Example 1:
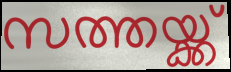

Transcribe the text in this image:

സത്തയ്ക്ക്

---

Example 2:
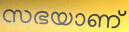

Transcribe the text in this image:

സഭയാണ്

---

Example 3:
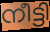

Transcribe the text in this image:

നീട്ടി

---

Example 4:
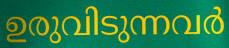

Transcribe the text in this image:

ഉരുവിടുന്നവർ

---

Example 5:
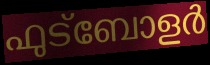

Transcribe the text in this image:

ഫുട്ബോളർ